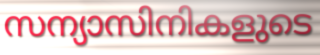
സന്യാസിനികളുടെ